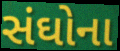
સંઘોના